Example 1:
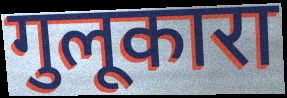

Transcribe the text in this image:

गुलूकारा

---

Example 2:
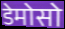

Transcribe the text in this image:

डेमोसो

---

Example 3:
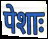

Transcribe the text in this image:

पेशाः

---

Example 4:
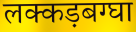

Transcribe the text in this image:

लक्कड़बग्घा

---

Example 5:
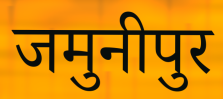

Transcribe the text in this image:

जमुनीपुर